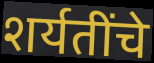
शर्यतींचे